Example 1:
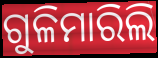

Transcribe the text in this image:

ଗୁଳିମାରିଲି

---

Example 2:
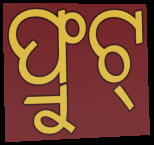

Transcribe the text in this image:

ଫ୍ରୁଟ୍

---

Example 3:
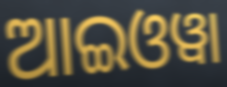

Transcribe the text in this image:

ଆଇଓୱା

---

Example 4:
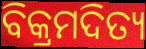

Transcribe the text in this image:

ବିକ୍ରମଦିତ୍ୟ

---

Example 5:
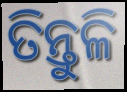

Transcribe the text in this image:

ତିନ୍ତୁଳି